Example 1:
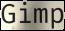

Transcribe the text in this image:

Gimp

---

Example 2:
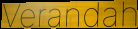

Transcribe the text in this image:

Verandah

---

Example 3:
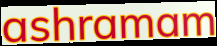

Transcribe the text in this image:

ashramam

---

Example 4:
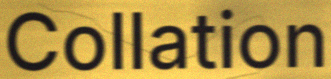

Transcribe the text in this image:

Collation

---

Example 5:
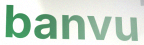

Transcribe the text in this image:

banvu